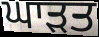
ਘਾੜਤ